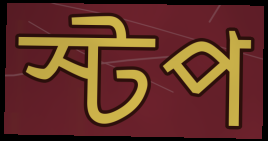
স্টপ